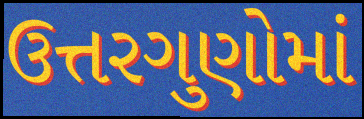
ઉત્તરગુણોમાં